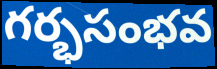
గర్భసంభవ